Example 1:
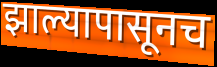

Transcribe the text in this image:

झाल्यापासूनच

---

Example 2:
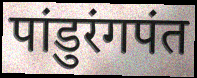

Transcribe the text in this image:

पांडुरंगपंत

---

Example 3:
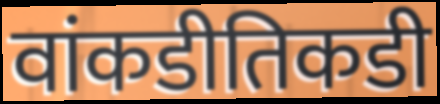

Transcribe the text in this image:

वांकडीतिकडी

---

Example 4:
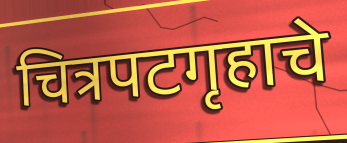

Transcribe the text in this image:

चित्रपटगृहाचे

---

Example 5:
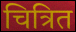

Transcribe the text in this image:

चित्रित